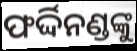
ଫର୍ଦ୍ଦିନଣ୍ଡଙ୍କୁ